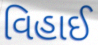
વિહાઈ